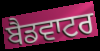
ਬੈਡਵਾਟਰ